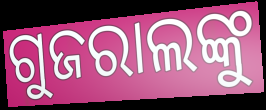
ଗୁଜରାଲଙ୍କୁ